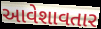
આવેશાવતાર